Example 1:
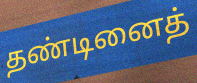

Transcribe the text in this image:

தண்டினைத்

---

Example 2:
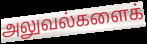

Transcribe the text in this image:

அலுவல்களைக்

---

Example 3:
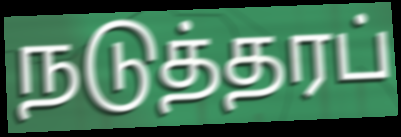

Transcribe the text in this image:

நடுத்தரப்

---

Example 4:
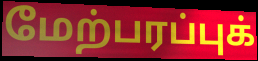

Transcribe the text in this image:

மேற்பரப்புக்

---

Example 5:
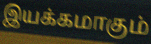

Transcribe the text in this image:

இயக்கமாகும்